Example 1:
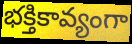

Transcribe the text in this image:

భక్తికావ్యంగా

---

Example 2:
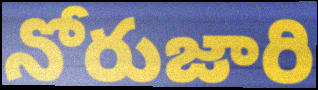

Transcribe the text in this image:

నోరుజారి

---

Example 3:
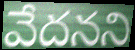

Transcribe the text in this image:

వేదనని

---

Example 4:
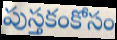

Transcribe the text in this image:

పుస్తకంకోసం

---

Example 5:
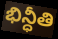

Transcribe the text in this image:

భిన్ధీతి